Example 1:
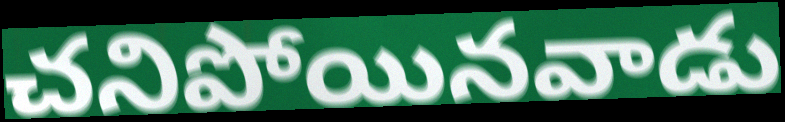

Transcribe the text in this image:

చనిపోయినవాడు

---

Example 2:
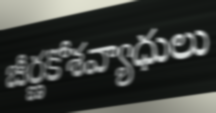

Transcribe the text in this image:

జీర్ణకోశవ్యాధులు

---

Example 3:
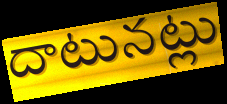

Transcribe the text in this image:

దాటునట్లు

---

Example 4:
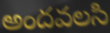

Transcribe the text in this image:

అందవలసి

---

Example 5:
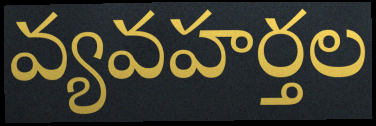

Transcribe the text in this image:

వ్యవహర్తల